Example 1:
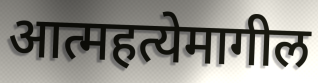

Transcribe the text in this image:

आत्महत्येमागील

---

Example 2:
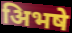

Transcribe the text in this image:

अिभषे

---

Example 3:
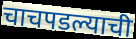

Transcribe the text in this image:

चाचपडल्याची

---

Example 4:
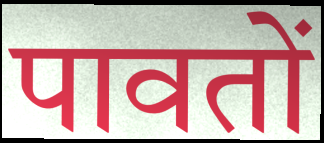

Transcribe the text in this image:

पावतों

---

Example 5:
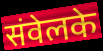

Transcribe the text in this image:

संवेलके